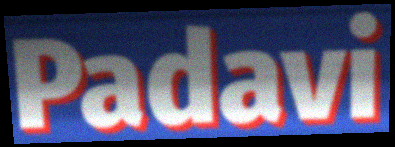
Padavi